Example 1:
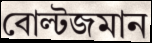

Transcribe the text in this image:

বোল্টজমান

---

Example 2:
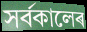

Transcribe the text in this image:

সৰ্বকালেৰ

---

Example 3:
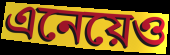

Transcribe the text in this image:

এনেয়েও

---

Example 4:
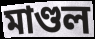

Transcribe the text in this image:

মাণ্ডল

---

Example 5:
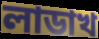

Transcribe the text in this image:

লাডাখ